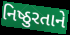
નિષ્ઠુરતાને